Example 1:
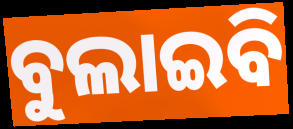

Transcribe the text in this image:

ବୁଲାଇବି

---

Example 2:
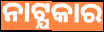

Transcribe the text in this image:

ନାଟ୍ଯକାର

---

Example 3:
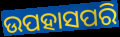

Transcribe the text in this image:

ଉପହାସପରି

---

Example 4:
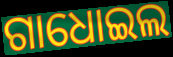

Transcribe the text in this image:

ଗାଧୋଇଲ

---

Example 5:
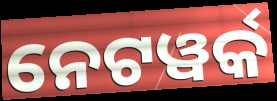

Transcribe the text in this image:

ନେଟୱର୍କ